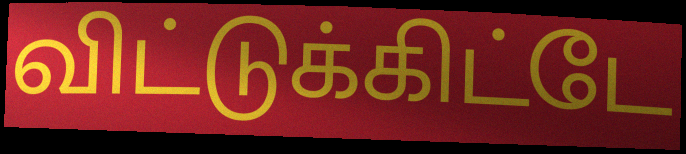
விட்டுக்கிட்டே